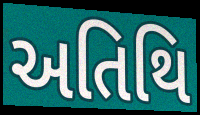
અતિથિ